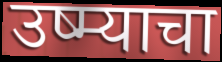
उष्म्याचा